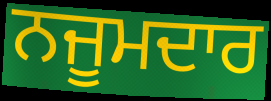
ਨਜੂਮਦਾਰ